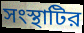
সংস্থাটির